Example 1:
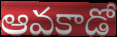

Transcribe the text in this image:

ఆవకాడో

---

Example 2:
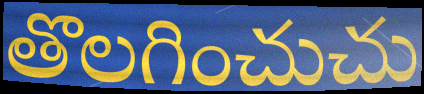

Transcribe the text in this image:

తొలగించుచు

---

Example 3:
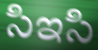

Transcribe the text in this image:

సిఇసి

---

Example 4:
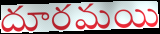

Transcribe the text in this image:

దూరమయి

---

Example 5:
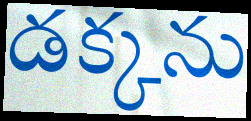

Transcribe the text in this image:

డక్కను